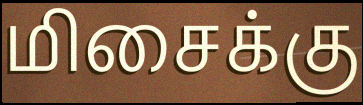
மிசைக்கு